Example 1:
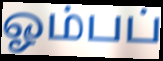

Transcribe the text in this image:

ஓம்பப்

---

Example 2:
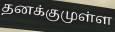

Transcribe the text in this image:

தனக்குமுள்ள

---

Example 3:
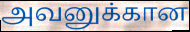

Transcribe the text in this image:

அவனுக்கான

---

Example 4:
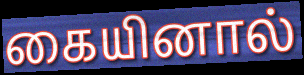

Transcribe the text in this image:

கையினால்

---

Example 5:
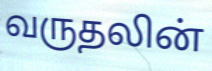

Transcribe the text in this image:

வருதலின்